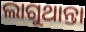
ଲାଗୁଥାନ୍ତା